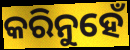
କରିନୁହେଁ